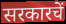
सरकारचें